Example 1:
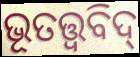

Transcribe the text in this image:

ଭୂତତ୍ତ୍ବବିଦ୍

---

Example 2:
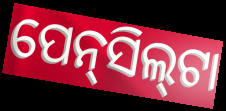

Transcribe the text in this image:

ପେନ୍‌ସିଲ୍‍ଟା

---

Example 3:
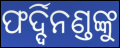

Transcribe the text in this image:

ଫର୍ଦ୍ଦିନଣ୍ଡଙ୍କୁ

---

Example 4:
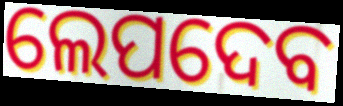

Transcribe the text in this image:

ଲେପଦେବ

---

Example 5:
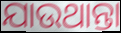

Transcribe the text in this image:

ଯାଉଥାନ୍ତା